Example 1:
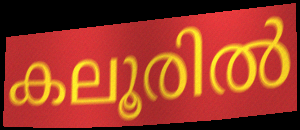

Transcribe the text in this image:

കലൂരിൽ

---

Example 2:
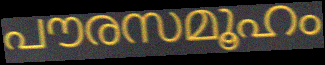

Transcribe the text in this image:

പൗരസമൂഹം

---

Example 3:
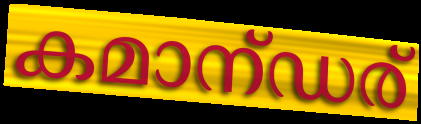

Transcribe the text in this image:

കമാന്ഡര്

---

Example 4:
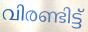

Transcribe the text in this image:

വിരണ്ടിട്ട്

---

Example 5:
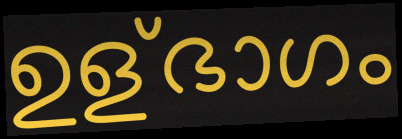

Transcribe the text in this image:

ഉള്ഭാഗം